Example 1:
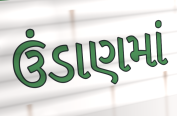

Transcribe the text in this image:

ઉંડાણમાં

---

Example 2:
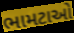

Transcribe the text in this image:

ભામટાઓ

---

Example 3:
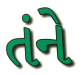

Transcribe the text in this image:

તંને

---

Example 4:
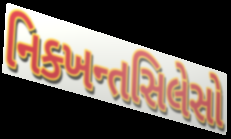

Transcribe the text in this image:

નિક્ખન્તસિલેસો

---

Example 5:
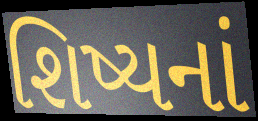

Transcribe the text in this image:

શિષ્યનાં